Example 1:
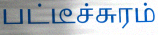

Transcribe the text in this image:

பட்டீச்சுரம்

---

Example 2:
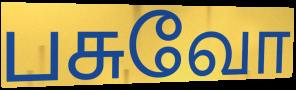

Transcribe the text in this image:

பசுவோ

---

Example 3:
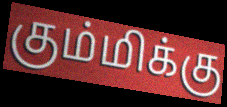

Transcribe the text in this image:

கும்மிக்கு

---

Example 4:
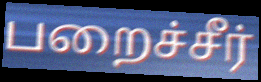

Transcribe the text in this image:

பறைச்சீர்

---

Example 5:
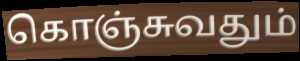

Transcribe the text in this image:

கொஞ்சுவதும்